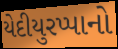
યેદીયુરપ્પાનો